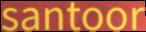
santoor